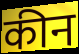
कीन